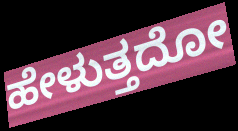
ಹೇಳುತ್ತದೋ